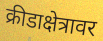
क्रीडाक्षेत्रावर